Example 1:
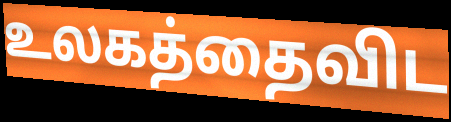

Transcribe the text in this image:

உலகத்தைவிட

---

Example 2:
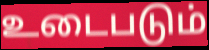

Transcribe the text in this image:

உடைபடும்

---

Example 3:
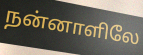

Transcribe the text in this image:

நன்னாளிலே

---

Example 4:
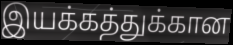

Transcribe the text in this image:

இயக்கத்துக்கான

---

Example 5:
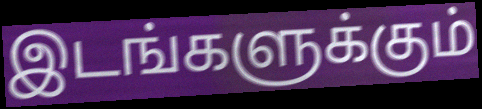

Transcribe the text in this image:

இடங்களுக்கும்